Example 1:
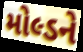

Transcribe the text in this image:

મોલ્ડને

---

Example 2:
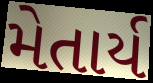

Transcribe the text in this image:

મેતાર્ય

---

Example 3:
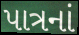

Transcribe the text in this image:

પાત્રનાં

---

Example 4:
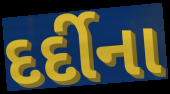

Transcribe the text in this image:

દર્દીના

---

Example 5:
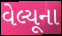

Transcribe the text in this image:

વેલ્યૂના